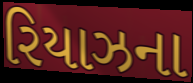
રિયાઝના